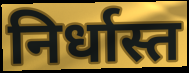
निर्धास्त